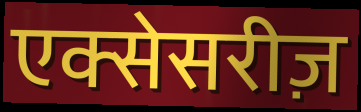
एक्सेसरीज़